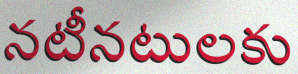
నటీనటులకు